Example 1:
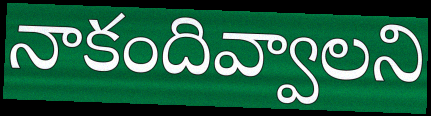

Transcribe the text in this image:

నాకందివ్వాలని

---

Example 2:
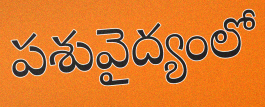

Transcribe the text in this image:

పశువైద్యంలో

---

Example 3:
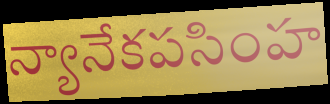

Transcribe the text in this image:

న్యానేకపసింహ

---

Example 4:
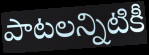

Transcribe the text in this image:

పాటలన్నిటికీ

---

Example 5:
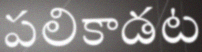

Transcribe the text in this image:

పలికాడట